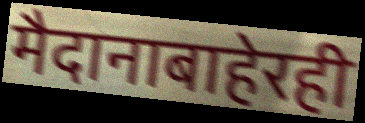
मैदानाबाहेरही